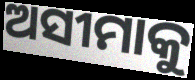
ଅସୀମାକୁ